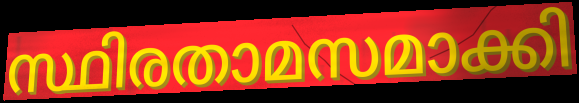
സ്ഥിരതാമസമാക്കി